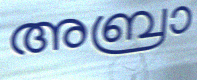
അബ്രാ